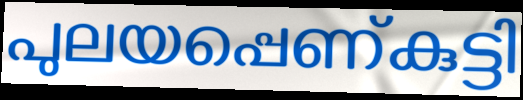
പുലയപ്പെണ്കുട്ടി